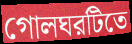
গোলঘরটিতে